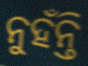
ନୁହଁନ୍ତି